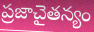
ప్రజాచైతన్యం